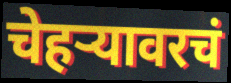
चेहर्‍यावरचं